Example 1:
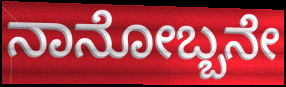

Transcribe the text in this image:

ನಾನೋಬ್ಬನೇ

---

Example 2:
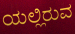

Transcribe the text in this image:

ಯಲ್ಲಿರುವ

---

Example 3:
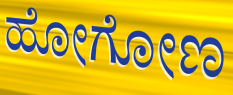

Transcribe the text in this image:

ಹೋಗೋಣ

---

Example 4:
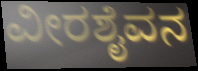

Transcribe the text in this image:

ವೀರಶೈವನ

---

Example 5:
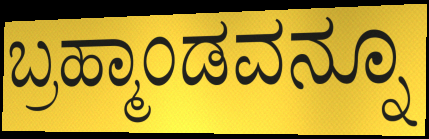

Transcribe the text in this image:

ಬ್ರಹ್ಮಾಂಡವನ್ನೂ